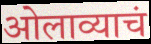
ओलाव्याचं